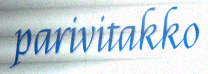
parivitakko